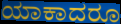
ಯಾಕಾದರೂ